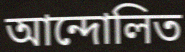
আন্দোলিত